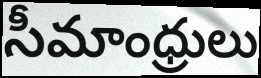
సీమాంధ్రులు